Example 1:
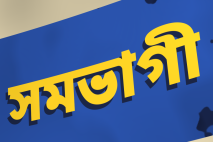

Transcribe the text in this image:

সমভাগী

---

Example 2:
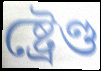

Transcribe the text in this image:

ষ্ট্ৰেণ্ড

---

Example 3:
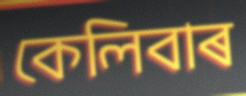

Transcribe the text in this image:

কেলিবাৰ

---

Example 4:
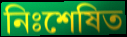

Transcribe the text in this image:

নিঃশেষিত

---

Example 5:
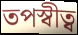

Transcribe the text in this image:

তপস্বীত্ব